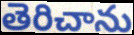
తెరిచాను